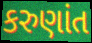
કરુણાંત